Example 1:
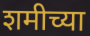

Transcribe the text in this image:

शमीच्या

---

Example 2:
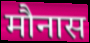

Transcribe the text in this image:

मौनास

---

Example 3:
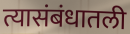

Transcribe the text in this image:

त्यासंबंधातली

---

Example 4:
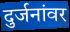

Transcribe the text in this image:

दुर्जनांवर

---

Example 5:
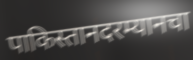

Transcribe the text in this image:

पाकिस्तानदरम्यानचा